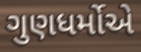
ગુણધર્મોએ